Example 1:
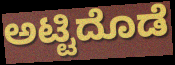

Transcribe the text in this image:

ಅಟ್ಟಿದೊಡೆ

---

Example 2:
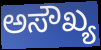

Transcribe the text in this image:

ಅಸೌಖ್ಯ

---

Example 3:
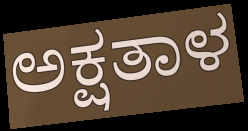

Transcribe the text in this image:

ಅಕ್ಷತಾಳ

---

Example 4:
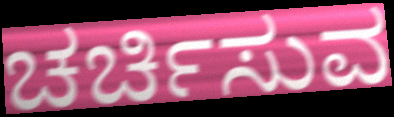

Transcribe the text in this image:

ಚರ್ಚಿಸುವ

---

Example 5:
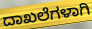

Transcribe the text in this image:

ದಾಖಲೆಗಳಾಗಿ